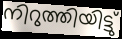
നിറുത്തിയിട്ടു്